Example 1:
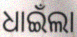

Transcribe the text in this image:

ଧାଇଁଲା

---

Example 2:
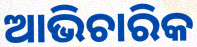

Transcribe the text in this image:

ଆଭିଚାରିକ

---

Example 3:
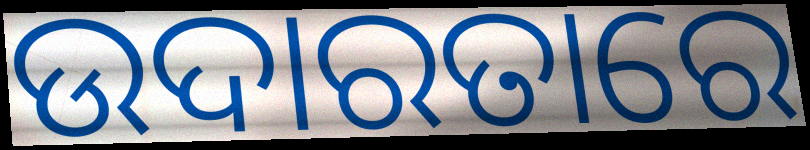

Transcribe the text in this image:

ଉଦାରତାରେ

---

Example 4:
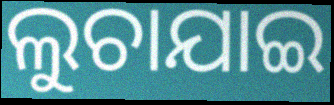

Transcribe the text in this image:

ଲୁଚାଯାଇ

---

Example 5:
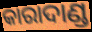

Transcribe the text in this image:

କାରାଦାଣ୍ଡ